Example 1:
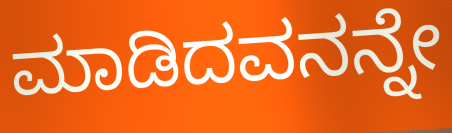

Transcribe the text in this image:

ಮಾಡಿದವನನ್ನೇ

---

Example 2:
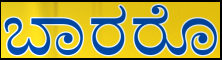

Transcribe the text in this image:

ಬಾರರೊ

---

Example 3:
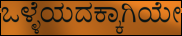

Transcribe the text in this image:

ಒಳ್ಳೆಯದಕ್ಕಾಗಿಯೇ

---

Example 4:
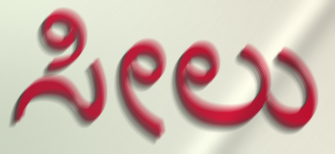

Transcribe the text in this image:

ಸೀಲು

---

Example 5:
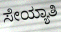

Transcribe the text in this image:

ಸೇಯ್ಯಾತಿ